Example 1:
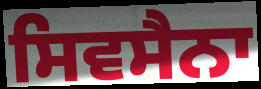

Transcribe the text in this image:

ਸਿਵਸੈਨਾ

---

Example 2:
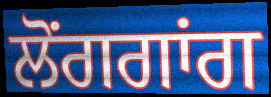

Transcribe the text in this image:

ਲੋਂਗਗਾਂਗ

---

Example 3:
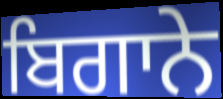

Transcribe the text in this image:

ਬਿਗਾਨੇ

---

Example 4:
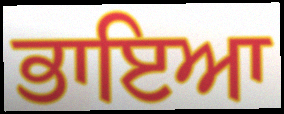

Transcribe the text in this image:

ਭਾਇਆ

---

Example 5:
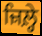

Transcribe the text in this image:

ਜ਼ਿਲ਼੍ਹੇ